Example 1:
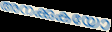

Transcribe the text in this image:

അനക്കുകയോ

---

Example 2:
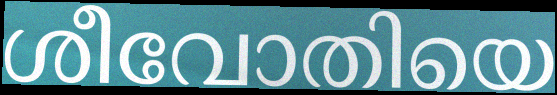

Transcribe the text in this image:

ശീവോതിയെ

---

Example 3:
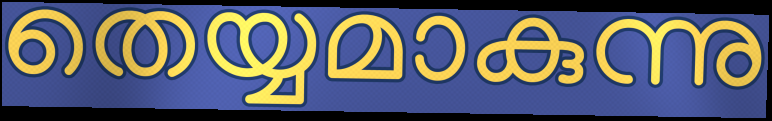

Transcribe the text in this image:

തെയ്യമാകുന്നു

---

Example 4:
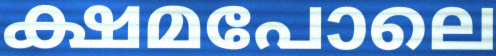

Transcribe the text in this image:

ക്ഷമപോലെ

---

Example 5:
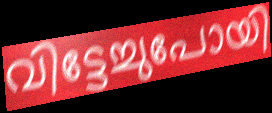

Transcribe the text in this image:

വിട്ടേച്ചുപോയി